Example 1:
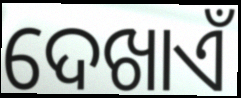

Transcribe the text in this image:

ଦେଖାଏଁ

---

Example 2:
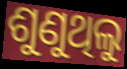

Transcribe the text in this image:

ଶୁଣୁଥିଲୁ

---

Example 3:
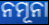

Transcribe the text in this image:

ନମୂନା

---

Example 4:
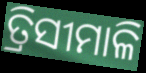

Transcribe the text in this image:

ତ୍ରିସୀମାଳି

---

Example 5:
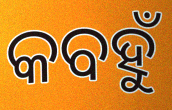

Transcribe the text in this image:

କବହୁଁ